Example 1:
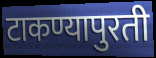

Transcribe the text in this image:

टाकण्यापुरती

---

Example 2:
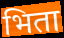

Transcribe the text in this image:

भिता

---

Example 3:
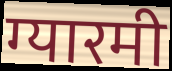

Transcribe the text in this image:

ग्यारमी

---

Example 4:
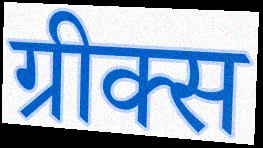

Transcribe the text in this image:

ग्रीक्स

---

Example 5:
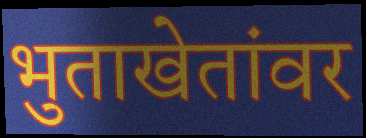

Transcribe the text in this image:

भुताखेतांवर